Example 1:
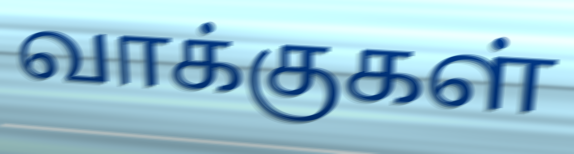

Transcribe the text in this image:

வாக்குகள்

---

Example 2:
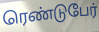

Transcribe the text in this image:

ரெண்டுபேர்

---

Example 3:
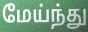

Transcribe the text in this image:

மேய்ந்து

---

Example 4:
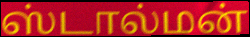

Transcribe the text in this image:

ஸ்டால்மன்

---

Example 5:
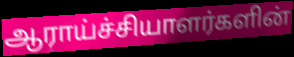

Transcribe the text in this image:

ஆராய்ச்சியாளர்களின்